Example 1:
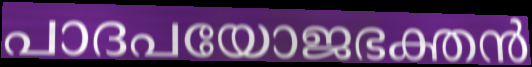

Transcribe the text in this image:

പാദപയോജഭക്തൻ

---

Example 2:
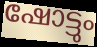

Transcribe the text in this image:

ഷോട്ടും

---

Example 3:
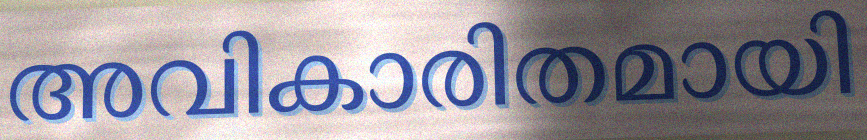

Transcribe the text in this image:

അവികാരിതമായി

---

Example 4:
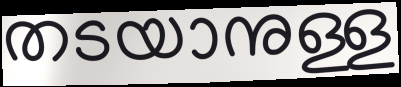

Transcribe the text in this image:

തടയാനുള്ള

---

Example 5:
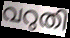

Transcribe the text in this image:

വറുതി